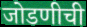
जोडणीची